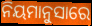
ନିୟମାନୁସାରେ